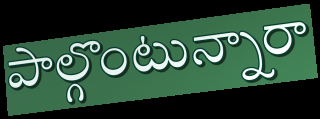
పాల్గొంటున్నారా